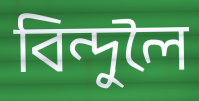
বিন্দুলৈ